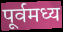
पूर्वमध्य